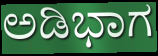
ಅಡಿಭಾಗ